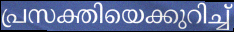
പ്രസക്തിയെക്കുറിച്ച്